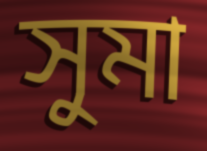
সুমা